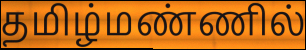
தமிழ்மண்ணில்